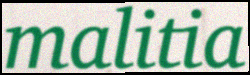
malitia